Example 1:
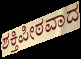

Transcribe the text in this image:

ಶಕ್ತಿಪೀಠವಾದ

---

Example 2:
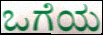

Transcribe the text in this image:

ಒಗೆಯ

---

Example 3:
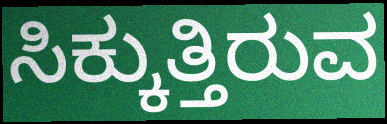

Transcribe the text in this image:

ಸಿಕ್ಕುತ್ತಿರುವ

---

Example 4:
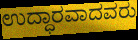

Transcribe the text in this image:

ಉದ್ಧಾರವಾದವರು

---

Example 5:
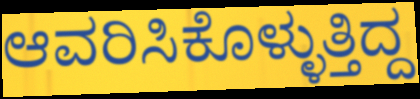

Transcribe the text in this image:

ಆವರಿಸಿಕೊಳ್ಳುತ್ತಿದ್ದ